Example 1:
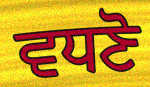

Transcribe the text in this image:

ਵਧਣੋ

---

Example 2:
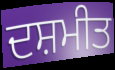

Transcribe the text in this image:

ਦਸ਼ਮੀਤ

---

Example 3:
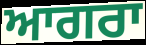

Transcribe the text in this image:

ਆਗਰਾ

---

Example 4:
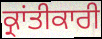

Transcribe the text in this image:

ਕ੍ਰਾਂਤੀਕਾਰੀ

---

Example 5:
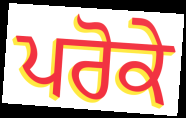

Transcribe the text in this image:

ਪਰੋਕੇ